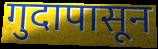
गुदापासून